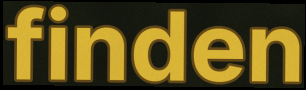
finden